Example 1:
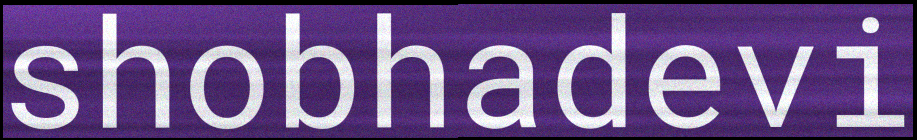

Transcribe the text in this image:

shobhadevi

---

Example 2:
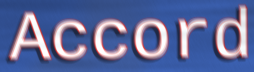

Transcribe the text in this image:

Accord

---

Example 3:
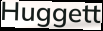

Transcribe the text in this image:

Huggett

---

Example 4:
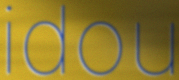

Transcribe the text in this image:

idou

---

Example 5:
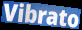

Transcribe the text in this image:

Vibrato